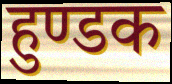
हुण्डक